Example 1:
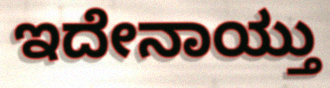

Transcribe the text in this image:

ಇದೇನಾಯ್ತು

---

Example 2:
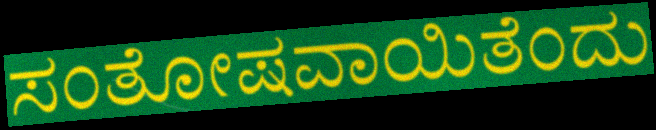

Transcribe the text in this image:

ಸಂತೋಷವಾಯಿತೆಂದು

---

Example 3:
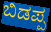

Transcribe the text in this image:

ಬಿಡಪ್ಪ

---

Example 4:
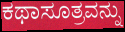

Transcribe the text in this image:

ಕಥಾಸೂತ್ರವನ್ನು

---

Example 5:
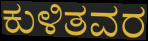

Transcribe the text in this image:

ಕುಳಿತವರ